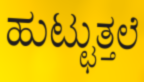
ಹುಟ್ಟುತ್ತಲೆ